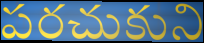
పరచుకుని